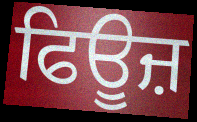
ਫਿਊਜ਼